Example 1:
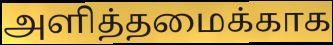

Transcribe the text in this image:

அளித்தமைக்காக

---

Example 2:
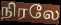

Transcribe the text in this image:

நிரலே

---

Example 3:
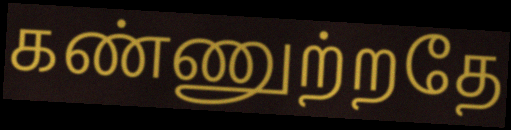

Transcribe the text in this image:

கண்ணுற்றதே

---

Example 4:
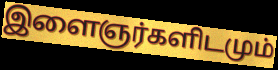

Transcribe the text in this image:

இளைஞர்களிடமும்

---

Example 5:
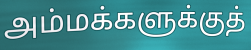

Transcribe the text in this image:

அம்மக்களுக்குத்